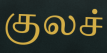
குலச்